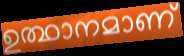
ഉത്ഥാനമാണ്